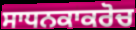
ਸਾਧਨਕਾਕਰੋਚ